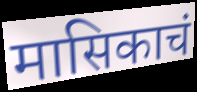
मासिकाचं